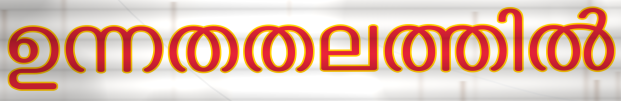
ഉന്നതതലത്തിൽ